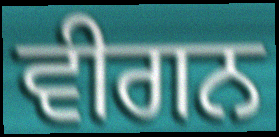
ਵੀਗਨ